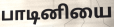
பாடினியை